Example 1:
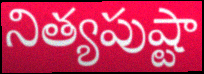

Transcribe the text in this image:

నిత్యపుష్టా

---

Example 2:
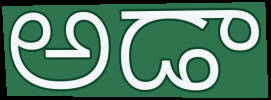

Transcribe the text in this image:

అడా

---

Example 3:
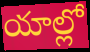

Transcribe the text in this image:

యాల్లో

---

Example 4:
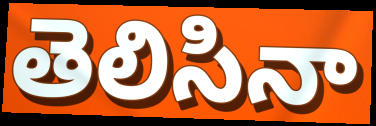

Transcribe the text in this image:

తెలిసినా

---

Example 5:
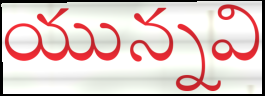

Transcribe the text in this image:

యున్నవి